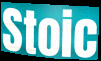
Stoic